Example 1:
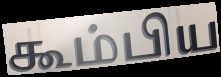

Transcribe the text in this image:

கூம்பிய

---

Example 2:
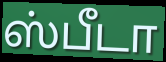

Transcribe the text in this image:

ஸ்பீடா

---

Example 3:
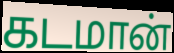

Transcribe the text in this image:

கடமான்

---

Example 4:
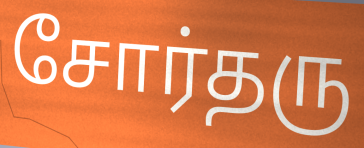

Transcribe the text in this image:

சோர்தரு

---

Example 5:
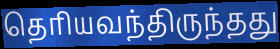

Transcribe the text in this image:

தெரியவந்திருந்தது